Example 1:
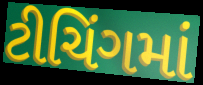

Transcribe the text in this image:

ટીચિંગમાં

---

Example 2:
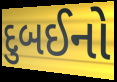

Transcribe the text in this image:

દુબઈનો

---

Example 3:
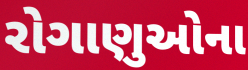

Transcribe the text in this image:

રોગાણુઓના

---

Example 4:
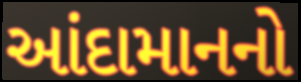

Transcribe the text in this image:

આંદામાનનો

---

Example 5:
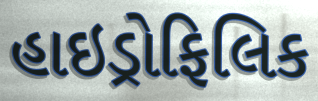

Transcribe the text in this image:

હાઇડ્રોફિલિક